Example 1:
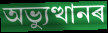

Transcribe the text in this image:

অভ্যুত্থানৰ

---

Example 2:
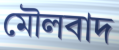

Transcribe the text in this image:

মৌলবাদ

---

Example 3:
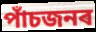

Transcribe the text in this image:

পাঁচজনৰ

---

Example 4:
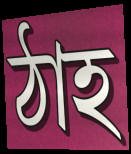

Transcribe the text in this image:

ঠাহ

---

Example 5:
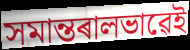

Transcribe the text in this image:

সমান্তৰালভাৱেই